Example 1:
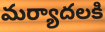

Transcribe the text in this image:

మర్యాదలకి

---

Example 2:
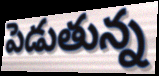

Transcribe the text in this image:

పెడుతున్న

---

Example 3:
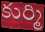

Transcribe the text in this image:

కుర్మి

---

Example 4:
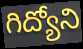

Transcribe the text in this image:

గిద్యోని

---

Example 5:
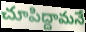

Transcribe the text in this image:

చూపిద్దామనే